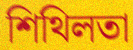
শিথিলতা